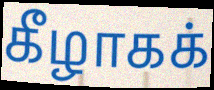
கீழாகக்